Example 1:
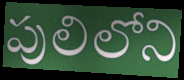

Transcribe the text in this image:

పులిలోని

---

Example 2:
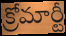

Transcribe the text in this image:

క్రోమార్టీ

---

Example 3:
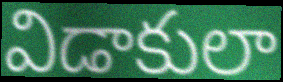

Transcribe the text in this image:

విడాకులా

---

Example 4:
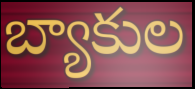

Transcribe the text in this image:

బ్యాకుల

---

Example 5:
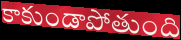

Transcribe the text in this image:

కాకుండాపోతుంది